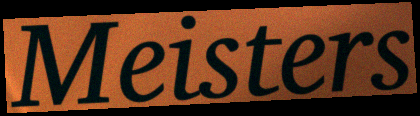
Meisters